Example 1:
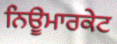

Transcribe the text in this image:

ਨਿਊਮਾਰਕੇਟ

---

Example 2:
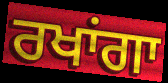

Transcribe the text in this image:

ਰਖਾਂਗਾ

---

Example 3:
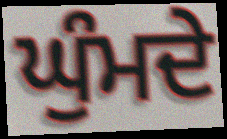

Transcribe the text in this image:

ਘੁੰਮਦੇ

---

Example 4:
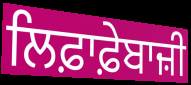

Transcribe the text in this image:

ਲਿਫ਼ਾਫ਼ੇਬਾਜ਼ੀ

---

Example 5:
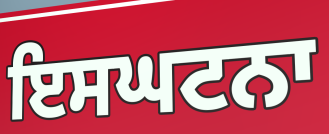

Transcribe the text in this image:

ਇਸਘਟਨਾ